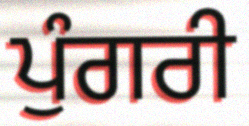
ਪੁੰਗਰੀ